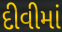
દીવીમાં